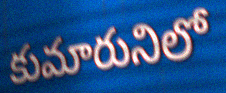
కుమారునిలో